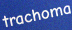
trachoma